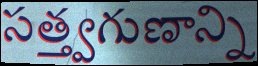
సత్త్వగుణాన్ని